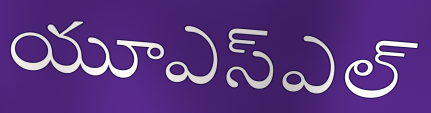
యూఎస్ఎల్